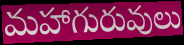
మహాగురువులు